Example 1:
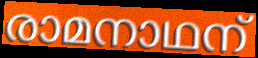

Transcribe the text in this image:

രാമനാഥന്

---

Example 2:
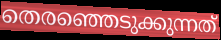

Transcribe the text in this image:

തെരഞ്ഞെടുക്കുന്നത്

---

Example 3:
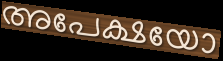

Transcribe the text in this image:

അപേക്ഷയോ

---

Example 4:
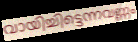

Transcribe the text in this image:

വായിച്ചിട്ടെന്നവണ്ണം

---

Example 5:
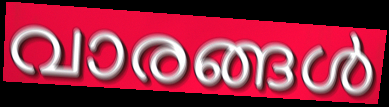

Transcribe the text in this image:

വാരങ്ങൾ